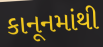
કાનૂનમાંથી